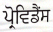
ਪ੍ਰੋਵਿਡੈਂਸ